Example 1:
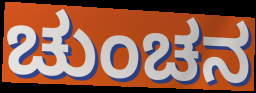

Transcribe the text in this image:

ಚುಂಚನ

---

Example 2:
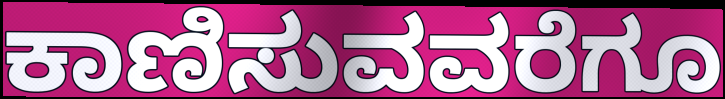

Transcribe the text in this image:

ಕಾಣಿಸುವವರೆಗೂ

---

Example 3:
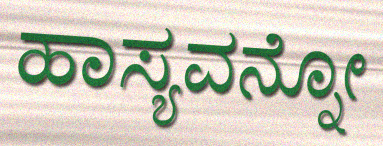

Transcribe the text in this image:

ಹಾಸ್ಯವನ್ನೋ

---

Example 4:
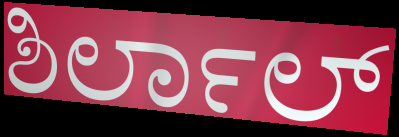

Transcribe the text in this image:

ಶಿರ್ಲಾಲ್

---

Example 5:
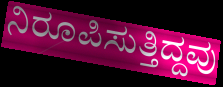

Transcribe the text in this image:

ನಿರೂಪಿಸುತ್ತಿದ್ದವು